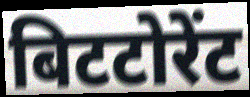
बिटटोरेंट